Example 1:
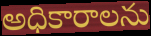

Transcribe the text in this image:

అధికారాలను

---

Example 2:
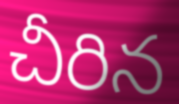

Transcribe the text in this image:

చీరిన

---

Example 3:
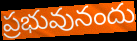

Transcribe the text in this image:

ప్రభువునందు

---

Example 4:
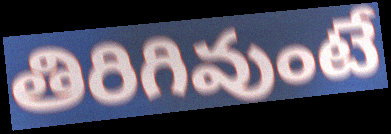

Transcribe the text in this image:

తిరిగివుంటే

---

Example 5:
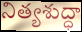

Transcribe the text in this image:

నిత్యశుద్ధా